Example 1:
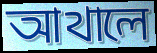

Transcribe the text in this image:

আথালে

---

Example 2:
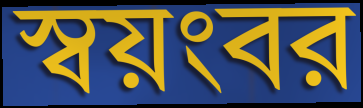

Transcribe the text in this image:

স্বয়ংবর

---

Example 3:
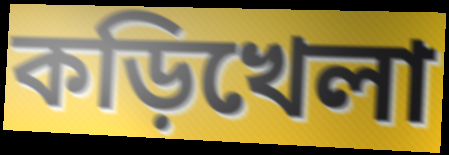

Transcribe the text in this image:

কড়িখেলা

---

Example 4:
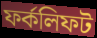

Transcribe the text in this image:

ফর্কলিফট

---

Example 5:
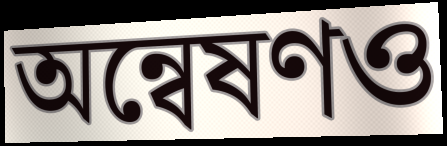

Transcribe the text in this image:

অন্বেষণও